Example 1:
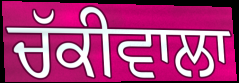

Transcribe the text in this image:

ਚੱਕੀਵਾਲਾ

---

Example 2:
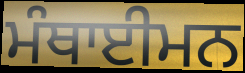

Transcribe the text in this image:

ਮੰਥਾਈਮਨ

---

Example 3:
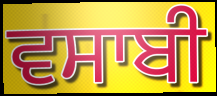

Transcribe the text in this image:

ਵਸਾਬੀ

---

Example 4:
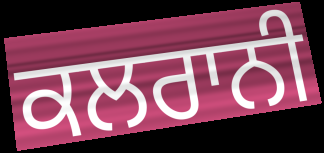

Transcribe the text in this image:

ਕਲਰਾਨੀ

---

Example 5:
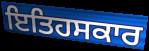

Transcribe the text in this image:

ਇਤਿਹਸਕਾਰ